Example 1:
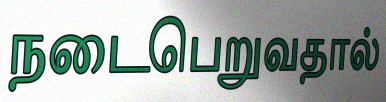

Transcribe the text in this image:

நடைபெறுவதால்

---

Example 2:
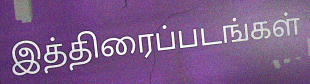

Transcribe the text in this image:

இத்திரைப்படங்கள்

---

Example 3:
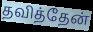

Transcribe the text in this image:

தவித்தேன்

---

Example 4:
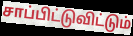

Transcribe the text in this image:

சாப்பிட்டுவிட்டும்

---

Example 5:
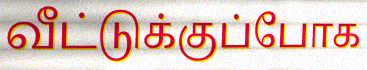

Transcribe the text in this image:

வீட்டுக்குப்போக